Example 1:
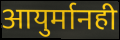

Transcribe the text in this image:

आयुर्मानही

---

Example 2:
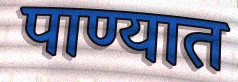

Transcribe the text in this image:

पाण्यात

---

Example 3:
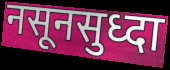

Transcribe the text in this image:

नसूनसुध्दा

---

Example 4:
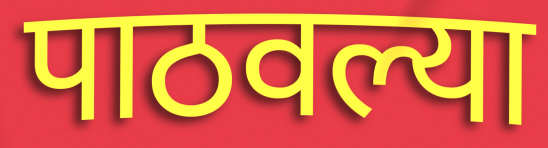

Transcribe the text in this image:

पाठवल्या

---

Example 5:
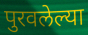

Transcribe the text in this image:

पुरवलेल्या